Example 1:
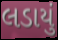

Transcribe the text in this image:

લડાયું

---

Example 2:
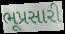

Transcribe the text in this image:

ભૂપ્રસારી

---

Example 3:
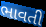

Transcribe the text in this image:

ભાવતી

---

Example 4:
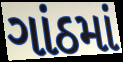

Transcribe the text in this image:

ગાંઠમાં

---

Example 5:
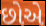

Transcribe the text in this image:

છોએ